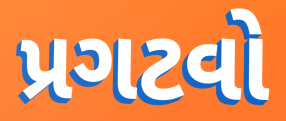
પ્રગટવો